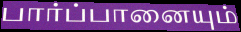
பார்ப்பானையும்